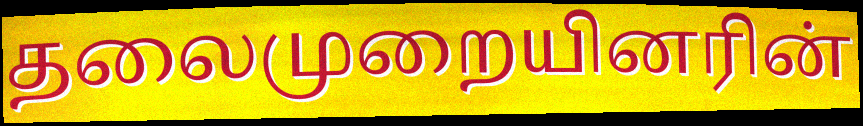
தலைமுறையினரின்